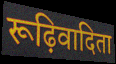
रूढ़िवादिता